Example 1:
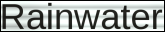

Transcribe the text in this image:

Rainwater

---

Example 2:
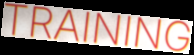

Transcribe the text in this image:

TRAINING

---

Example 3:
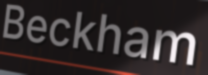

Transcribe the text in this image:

Beckham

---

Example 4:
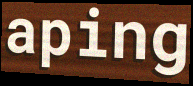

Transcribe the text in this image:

aping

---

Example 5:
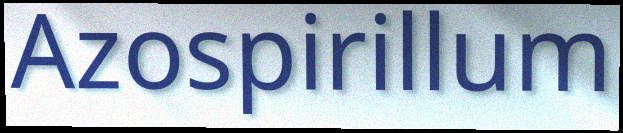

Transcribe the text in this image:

Azospirillum